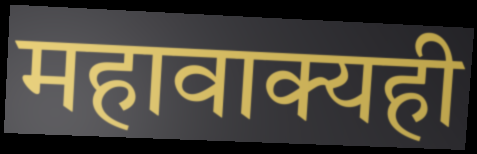
महावाक्यही